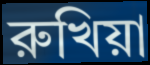
রুখিয়া